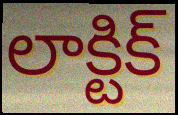
లాక్టిక్